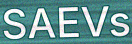
SAEVs